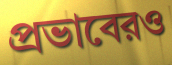
প্রভাবেরও